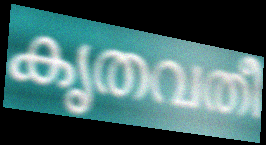
കൃതവതീ